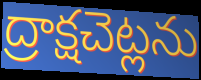
ద్రాక్షచెట్లను